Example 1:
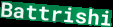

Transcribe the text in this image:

Battrishi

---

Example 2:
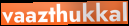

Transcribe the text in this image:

vaazthukkal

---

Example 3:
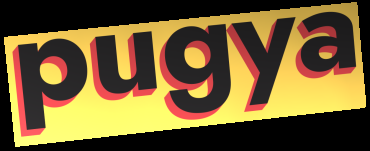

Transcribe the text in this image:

pugya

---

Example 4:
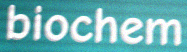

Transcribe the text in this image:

biochem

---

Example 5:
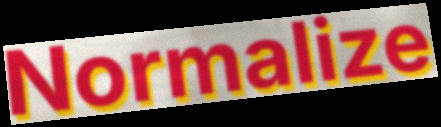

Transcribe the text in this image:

Normalize